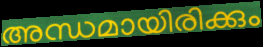
അന്ധമായിരിക്കും